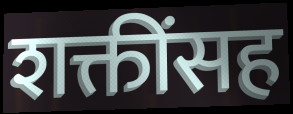
शक्तींसह